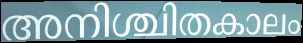
അനിശ്ചിതകാലം